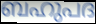
ബഹുപദ